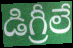
డిగ్రీలే